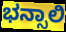
ಭನ್ಸಾಲಿ